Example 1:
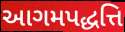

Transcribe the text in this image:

આગમપદ્ધત્તિ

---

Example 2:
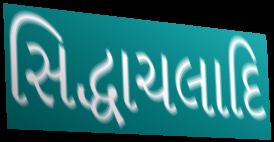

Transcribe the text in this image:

સિદ્ધાચલાદિ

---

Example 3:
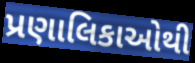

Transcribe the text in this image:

પ્રણાલિકાઓથી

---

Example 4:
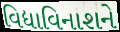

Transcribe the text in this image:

વિદ્યાવિનાશને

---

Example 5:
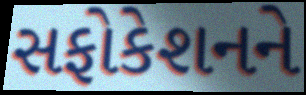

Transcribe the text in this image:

સફોકેશનને